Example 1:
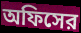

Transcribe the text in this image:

অফিসের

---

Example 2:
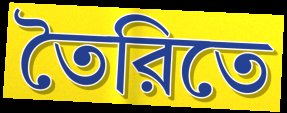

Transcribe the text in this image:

তৈরিতে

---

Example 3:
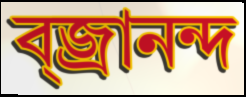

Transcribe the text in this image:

ব্জ্রানন্দ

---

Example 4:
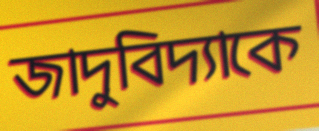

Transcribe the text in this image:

জাদুবিদ্যাকে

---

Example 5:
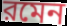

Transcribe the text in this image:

রমেন